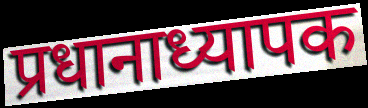
प्रधानाध्यापक